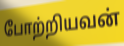
போற்றியவன்